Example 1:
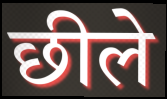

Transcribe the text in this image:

छीले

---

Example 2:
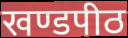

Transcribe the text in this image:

खण्डपीठ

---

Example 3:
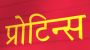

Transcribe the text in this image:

प्रोटिन्स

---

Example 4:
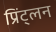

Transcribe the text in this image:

प्रिंट्लन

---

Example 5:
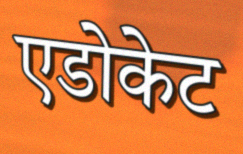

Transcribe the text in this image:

एडोकेट